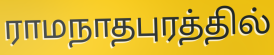
ராமநாதபுரத்தில்